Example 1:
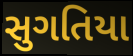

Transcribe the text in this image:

સુગતિયા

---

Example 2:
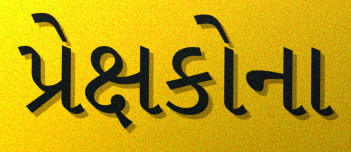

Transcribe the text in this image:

પ્રેક્ષકોના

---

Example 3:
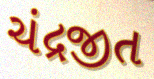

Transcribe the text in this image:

ચંદ્રજીત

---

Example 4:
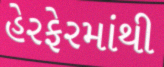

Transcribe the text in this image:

હેરફેરમાંથી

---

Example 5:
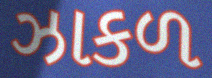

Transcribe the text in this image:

ઝાકળ